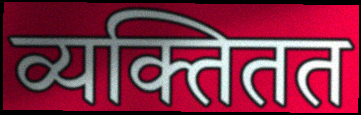
व्यक्तितत